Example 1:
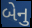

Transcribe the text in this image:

બેનુ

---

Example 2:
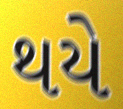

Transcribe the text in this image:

થયે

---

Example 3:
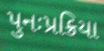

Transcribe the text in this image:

પુનઃપ્રક્રિયા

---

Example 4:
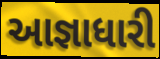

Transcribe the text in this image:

આજ્ઞાધારી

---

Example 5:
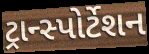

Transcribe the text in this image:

ટ્રાન્સ્પોર્ટેશન